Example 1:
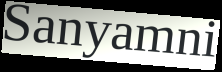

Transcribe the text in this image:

Sanyamni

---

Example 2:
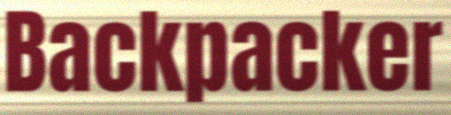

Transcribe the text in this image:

Backpacker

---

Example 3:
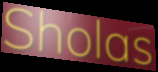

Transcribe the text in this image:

Sholas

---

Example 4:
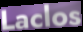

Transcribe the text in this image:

Laclos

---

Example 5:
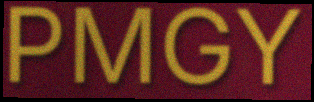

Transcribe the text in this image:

PMGY